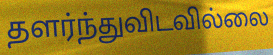
தளர்ந்துவிடவில்லை